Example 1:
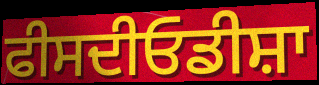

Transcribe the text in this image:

ਫੀਸਦੀਓਡੀਸ਼ਾ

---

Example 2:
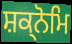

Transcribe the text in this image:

ਸ਼ਕ੍ਨੋਮਿ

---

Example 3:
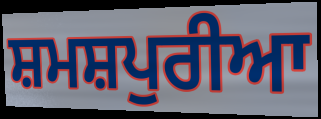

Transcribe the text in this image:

ਸ਼ਮਸ਼ਪੁਰੀਆ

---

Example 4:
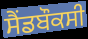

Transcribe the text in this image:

ਸੈਂਡਬੌਕਸੀ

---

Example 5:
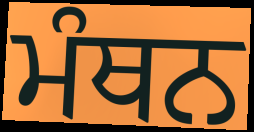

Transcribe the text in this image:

ਮੰਥਨ